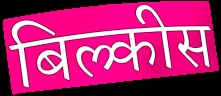
बिल्कीस